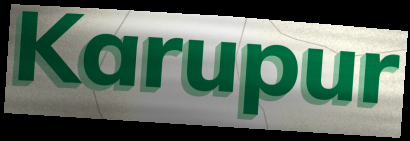
Karupur